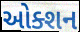
ઓક્શન